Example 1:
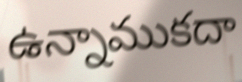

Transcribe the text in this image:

ఉన్నాముకదా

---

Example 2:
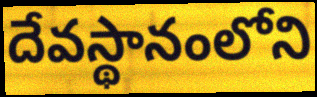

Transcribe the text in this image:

దేవస్థానంలోని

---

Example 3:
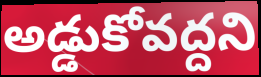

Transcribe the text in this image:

అడ్డుకోవద్దని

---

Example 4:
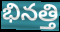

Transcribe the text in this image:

భినత్తి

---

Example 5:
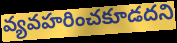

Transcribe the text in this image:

వ్యవహరించకూడదని